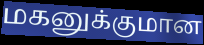
மகனுக்குமான